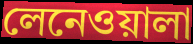
লেনেওয়ালা